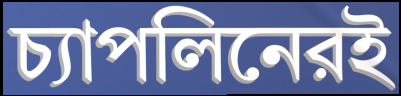
চ্যাপলিনেরই